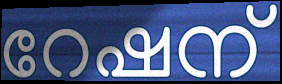
റേഷന്